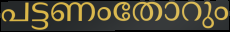
പട്ടണംതോറും